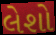
લેશો